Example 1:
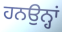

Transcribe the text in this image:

ਹਨਉਨ੍ਹਾਂ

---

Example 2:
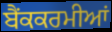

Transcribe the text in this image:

ਬੈਂਕਕਰਮੀਆਂ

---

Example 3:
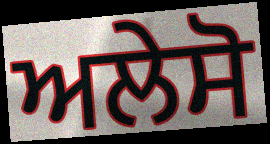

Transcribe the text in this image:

ਅਲੇਸੋ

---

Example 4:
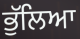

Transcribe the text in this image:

ਭੁੱਲਿਆ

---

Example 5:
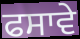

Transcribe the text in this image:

ਫਸਾਵੇ